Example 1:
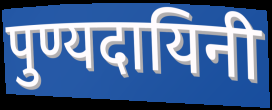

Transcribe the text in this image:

पुण्यदायिनी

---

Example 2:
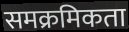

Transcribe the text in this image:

समक्रमिकता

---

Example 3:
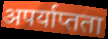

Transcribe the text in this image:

अपर्याप्तता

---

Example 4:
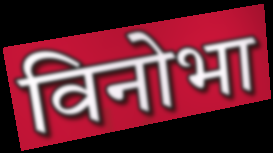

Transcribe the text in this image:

विनोभा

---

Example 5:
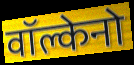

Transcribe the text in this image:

वॉल्केनो